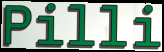
Pilli